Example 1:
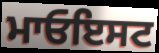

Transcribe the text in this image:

ਮਾਓਇਸਟ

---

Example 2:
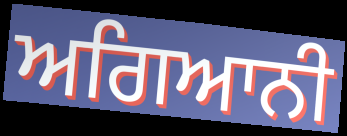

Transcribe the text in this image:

ਅਗਿਆਨੀ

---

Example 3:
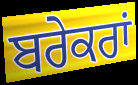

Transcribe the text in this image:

ਬਰੇਕਰਾਂ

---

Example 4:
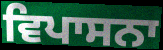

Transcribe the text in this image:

ਵਿਪਾਸਨਾ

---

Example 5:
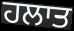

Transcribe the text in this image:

ਹਲਾਤ